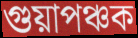
গুয়াপঞ্চক